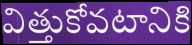
విత్తుకోవటానికి